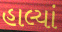
હાલ્યાં